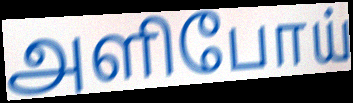
அளிபோய்